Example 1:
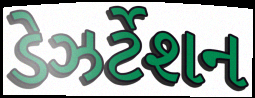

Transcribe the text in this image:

ડેઝર્ટેશન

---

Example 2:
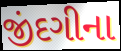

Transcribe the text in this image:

જીંદગીના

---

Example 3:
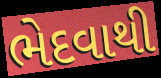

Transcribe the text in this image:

ભેદવાથી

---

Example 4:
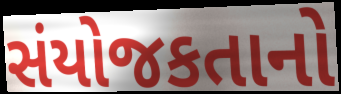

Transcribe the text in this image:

સંયોજકતાનો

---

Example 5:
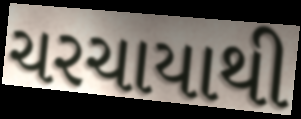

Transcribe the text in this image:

ચરચાયાથી